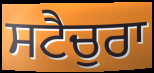
ਸਟੈਚੁਰਾ